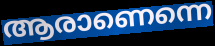
ആരാണെന്നെ